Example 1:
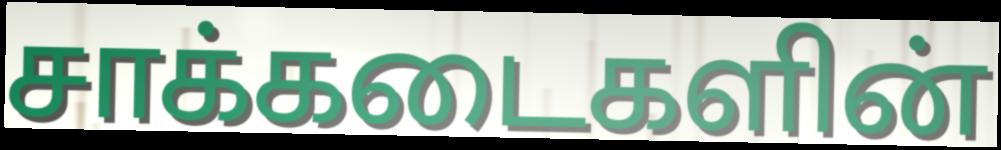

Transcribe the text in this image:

சாக்கடைகளின்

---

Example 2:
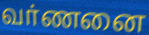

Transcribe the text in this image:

வர்ணனை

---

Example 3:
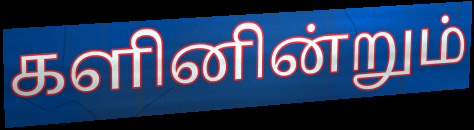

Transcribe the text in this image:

களினின்றும்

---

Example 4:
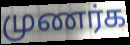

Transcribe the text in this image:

முணர்க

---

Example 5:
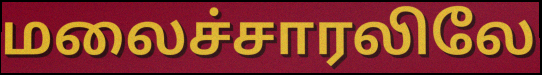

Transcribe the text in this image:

மலைச்சாரலிலே